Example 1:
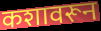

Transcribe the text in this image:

कशावरून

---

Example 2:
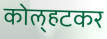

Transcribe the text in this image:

कोल्हटकर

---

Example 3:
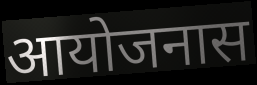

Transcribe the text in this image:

आयोजनास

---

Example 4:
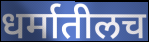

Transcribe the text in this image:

धर्मातीलच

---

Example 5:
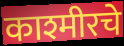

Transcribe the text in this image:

काश्मीरचे